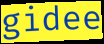
gidee